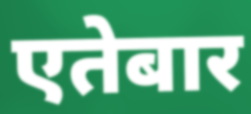
एतेबार